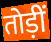
तोड़ीं